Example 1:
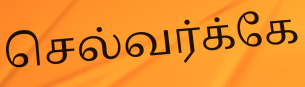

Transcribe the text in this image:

செல்வர்க்கே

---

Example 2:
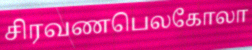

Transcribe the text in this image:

சிரவணபெலகோலா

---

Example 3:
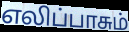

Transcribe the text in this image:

எலிப்பாசும்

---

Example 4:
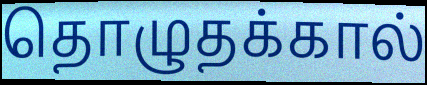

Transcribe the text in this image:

தொழுதக்கால்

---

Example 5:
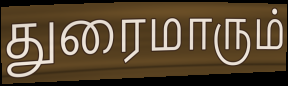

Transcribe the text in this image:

துரைமாரும்